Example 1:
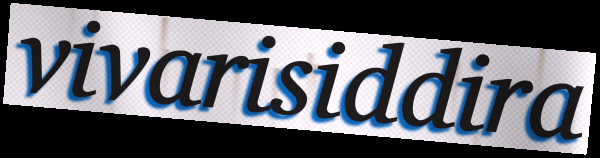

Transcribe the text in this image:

vivarisiddira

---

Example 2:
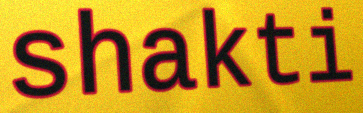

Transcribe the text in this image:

shakti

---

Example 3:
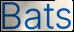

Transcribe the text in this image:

Bats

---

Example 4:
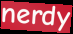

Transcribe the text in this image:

nerdy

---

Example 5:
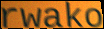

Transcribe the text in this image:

rwako